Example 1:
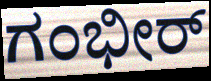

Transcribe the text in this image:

ಗಂಭೀರ್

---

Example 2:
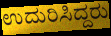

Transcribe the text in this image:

ಉದುರಿಸಿದ್ದರು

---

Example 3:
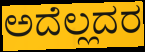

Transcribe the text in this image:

ಅದೆಲ್ಲದರ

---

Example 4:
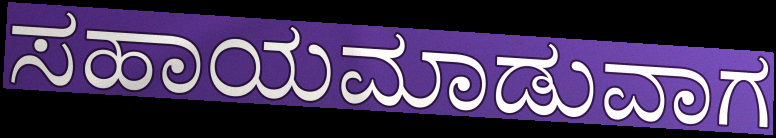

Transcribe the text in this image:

ಸಹಾಯಮಾಡುವಾಗ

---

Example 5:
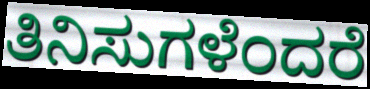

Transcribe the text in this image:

ತಿನಿಸುಗಳೆಂದರೆ